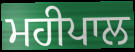
ਮਹੀਪਾਲ